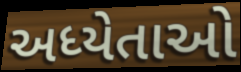
અધ્યેતાઓ